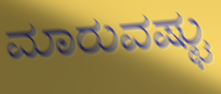
ಮಾರುವಷ್ಟು